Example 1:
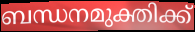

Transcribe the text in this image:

ബന്ധനമുക്തിക്ക്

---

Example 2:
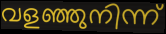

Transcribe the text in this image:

വളഞ്ഞുനിന്ന്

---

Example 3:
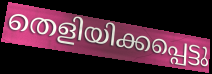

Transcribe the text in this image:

തെളിയിക്കപ്പെട്ടു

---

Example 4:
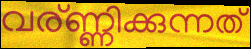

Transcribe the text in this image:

വര്ണ്ണിക്കുന്നത്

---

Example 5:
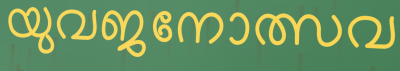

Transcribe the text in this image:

യുവജനോത്സവ